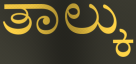
ತಾಲ್ಕು